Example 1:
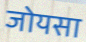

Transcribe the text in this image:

जोयसा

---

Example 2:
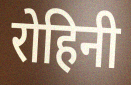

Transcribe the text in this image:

रोहिनी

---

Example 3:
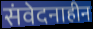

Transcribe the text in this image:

संवेदनाहीन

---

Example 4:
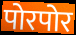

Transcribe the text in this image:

पोरपोर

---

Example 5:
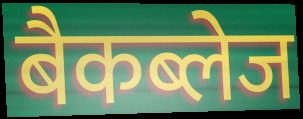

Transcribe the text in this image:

बैकब्लेज